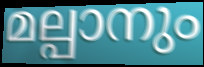
മല്പാനും